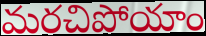
మరచిపోయాం